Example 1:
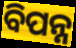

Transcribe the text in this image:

ବିପନ୍ନ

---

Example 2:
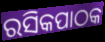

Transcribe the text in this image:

ରସିକପାଠକ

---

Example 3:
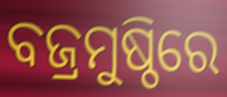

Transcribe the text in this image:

ବଜ୍ରମୁଷ୍ଠିରେ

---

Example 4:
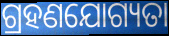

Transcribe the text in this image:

ଗ୍ରହଣଯୋଗ୍ୟତା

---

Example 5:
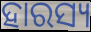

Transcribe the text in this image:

ହାରସ୍ୟ